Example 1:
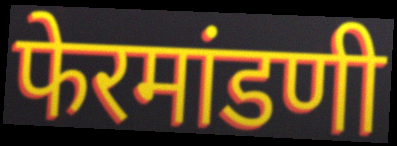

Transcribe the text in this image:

फेरमांडणी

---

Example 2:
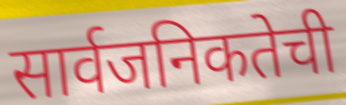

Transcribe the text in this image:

सार्वजनिकतेची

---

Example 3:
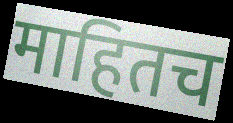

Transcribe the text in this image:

माहितच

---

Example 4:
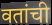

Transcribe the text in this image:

वतांची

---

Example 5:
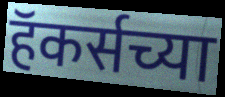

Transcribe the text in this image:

हॅकर्सच्या